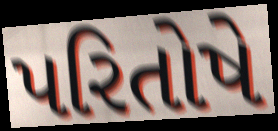
પરિતોષે